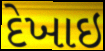
દેખાઇ